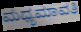
ಮಧ್ಯಮಾವತಿ